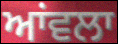
ਆਂਵਲਾ